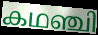
കഥഞ്ചി